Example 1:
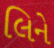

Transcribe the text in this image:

લિને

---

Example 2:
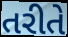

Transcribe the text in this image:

તરીતે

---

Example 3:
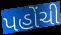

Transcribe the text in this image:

પહોંચી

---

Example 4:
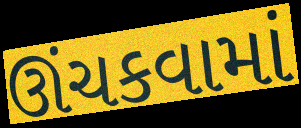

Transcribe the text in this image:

ઊંચકવામાં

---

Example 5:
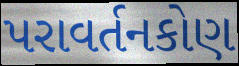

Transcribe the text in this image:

પરાવર્તનકોણ